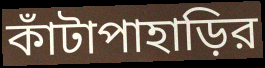
কাঁটাপাহাড়ির